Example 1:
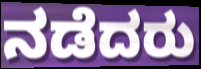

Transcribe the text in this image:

ನಡೆದರು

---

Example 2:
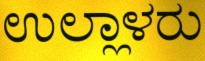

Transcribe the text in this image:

ಉಲ್ಲಾಳರು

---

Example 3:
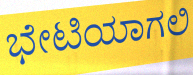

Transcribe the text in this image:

ಭೇಟಿಯಾಗಲಿ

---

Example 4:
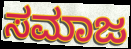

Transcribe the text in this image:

ಸಮಾಜ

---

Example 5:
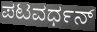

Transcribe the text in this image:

ಪಟವರ್ಧನ್